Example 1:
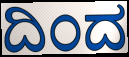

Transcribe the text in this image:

ದಿಂದ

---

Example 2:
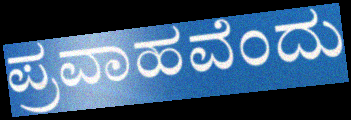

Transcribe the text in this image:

ಪ್ರವಾಹವೆಂದು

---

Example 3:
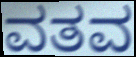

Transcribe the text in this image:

ವತವ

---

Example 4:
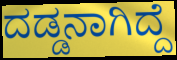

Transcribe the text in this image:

ದಡ್ಡನಾಗಿದ್ದೆ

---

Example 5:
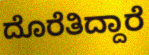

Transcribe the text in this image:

ದೊರೆತಿದ್ದಾರೆ